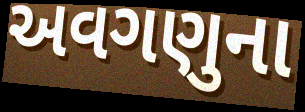
અવગણુના